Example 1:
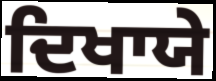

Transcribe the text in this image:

ਦਿਖਾਯੇ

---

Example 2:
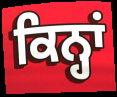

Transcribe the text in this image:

ਕਿਨ੍ਹਾਂ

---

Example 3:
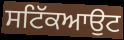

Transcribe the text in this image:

ਸਟਿੱਕਆਉਟ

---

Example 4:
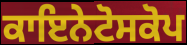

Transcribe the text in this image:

ਕਾਇਨੇਟੋਸਕੋਪ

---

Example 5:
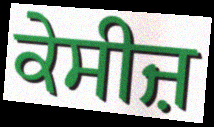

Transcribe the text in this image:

ਕੇਸੀਜ਼